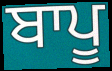
ਬਾਪੂ